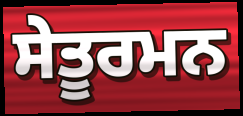
ਸੇਤੂਰਮਨ